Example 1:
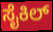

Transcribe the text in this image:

ಸೈಕಿಲ್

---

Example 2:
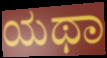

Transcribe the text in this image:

ಯಥಾ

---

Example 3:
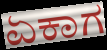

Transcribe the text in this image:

ಏಕಾಗ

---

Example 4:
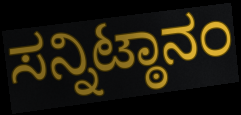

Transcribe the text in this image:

ಸನ್ನಿಟ್ಠಾನಂ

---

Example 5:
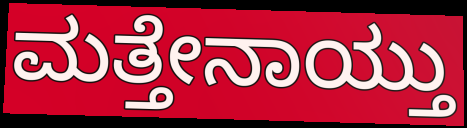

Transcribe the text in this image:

ಮತ್ತೇನಾಯ್ತು